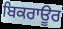
ਬਿਕਰਾਊਰ